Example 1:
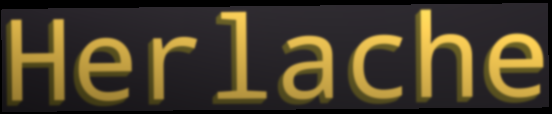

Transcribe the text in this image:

Herlache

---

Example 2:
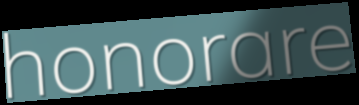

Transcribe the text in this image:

honorare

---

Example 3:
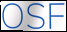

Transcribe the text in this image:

OSF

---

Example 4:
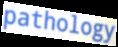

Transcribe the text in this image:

pathology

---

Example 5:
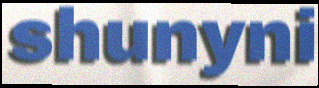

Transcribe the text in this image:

shunyni